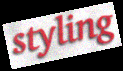
styling